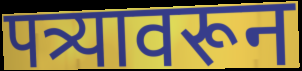
पत्र्यावरून